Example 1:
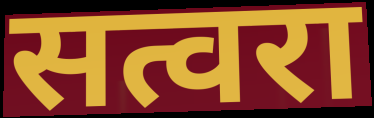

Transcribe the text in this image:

सत्वरा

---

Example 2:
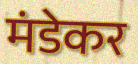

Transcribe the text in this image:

मंडेकर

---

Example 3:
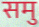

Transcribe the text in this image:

समु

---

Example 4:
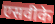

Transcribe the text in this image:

एसवीके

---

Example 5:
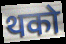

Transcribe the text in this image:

थको